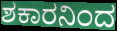
ಶಕಾರನಿಂದ